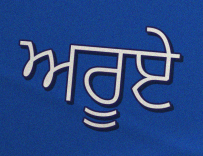
ਅਰੂਏ